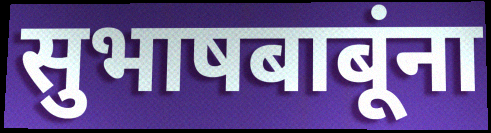
सुभाषबाबूंना